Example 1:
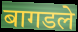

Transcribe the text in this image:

बागडले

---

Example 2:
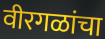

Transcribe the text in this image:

वीरगळांचा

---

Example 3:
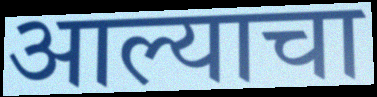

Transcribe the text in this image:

आल्‍याचा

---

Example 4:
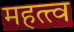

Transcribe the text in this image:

महत्‍त्‍व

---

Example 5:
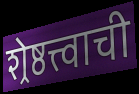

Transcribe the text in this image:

श्रेष्ठत्त्वाची